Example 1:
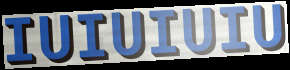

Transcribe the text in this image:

IUIUIUIU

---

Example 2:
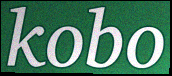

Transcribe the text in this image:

kobo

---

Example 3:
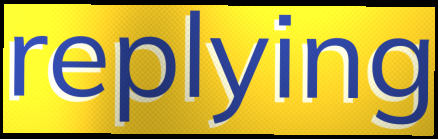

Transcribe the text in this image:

replying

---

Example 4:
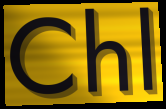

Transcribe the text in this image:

Chl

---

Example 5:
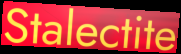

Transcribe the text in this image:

Stalectite